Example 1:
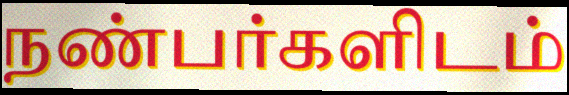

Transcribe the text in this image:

நண்பர்களிடம்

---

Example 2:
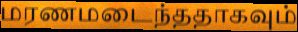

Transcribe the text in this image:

மரணமடைந்ததாகவும்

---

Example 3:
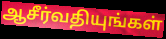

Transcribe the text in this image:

ஆசீர்வதியுங்கள்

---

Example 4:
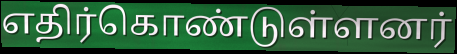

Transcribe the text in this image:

எதிர்கொண்டுள்ளனர்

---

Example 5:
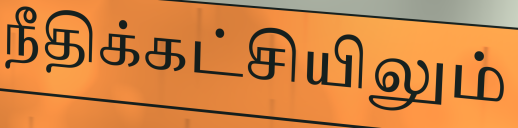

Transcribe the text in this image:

நீதிக்கட்சியிலும்